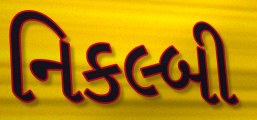
નિકલ્બી